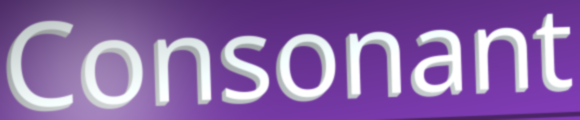
Consonant